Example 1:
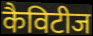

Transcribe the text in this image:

कैविटीज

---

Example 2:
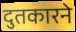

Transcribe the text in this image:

दुतकारने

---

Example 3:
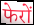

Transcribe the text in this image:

फेरों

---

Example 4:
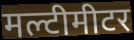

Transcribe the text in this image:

मल्टीमीटर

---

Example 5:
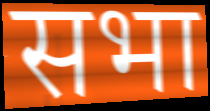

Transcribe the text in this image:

सभा